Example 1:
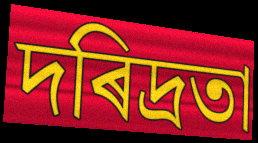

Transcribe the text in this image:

দৰিদ্ৰতা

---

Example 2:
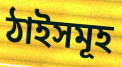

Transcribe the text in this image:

ঠাইসমূহ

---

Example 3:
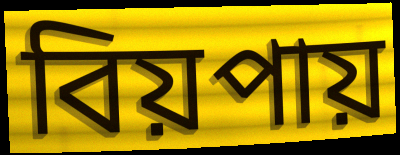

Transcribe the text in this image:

বিয়পায়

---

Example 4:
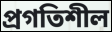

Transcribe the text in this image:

প্ৰগতিশীল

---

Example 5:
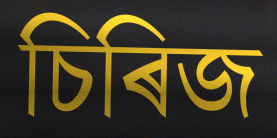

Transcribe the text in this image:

চিৰিজ